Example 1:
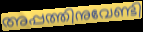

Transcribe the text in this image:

അപ്പത്തിനുവേണ്ടി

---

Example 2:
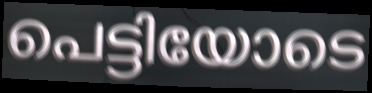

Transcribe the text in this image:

പെട്ടിയോടെ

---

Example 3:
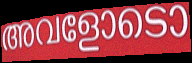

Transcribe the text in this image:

അവളോടൊ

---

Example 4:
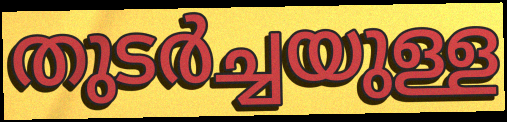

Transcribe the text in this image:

തുടർച്ചയുള്ള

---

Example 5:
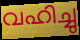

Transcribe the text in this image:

വഹിച്ചു